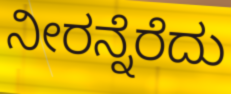
ನೀರನ್ನೆರೆದು